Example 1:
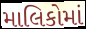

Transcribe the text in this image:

માલિકોમાં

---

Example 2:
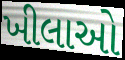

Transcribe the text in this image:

ખીલાઓ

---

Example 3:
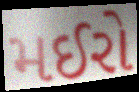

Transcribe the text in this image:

મઈરો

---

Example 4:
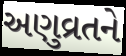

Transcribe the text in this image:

અણુવ્રતને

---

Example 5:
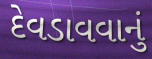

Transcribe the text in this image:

દેવડાવવાનું